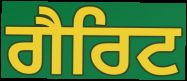
ਗੈਰਿਟ